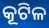
କୂଟିଳ